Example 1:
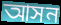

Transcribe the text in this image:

আসন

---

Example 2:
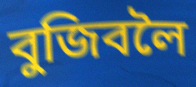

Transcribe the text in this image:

বুজিবলৈ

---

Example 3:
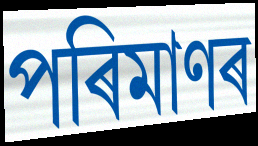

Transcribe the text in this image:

পৰিমাণৰ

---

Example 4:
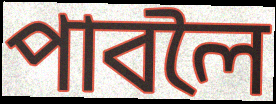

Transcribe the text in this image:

পাবলৈ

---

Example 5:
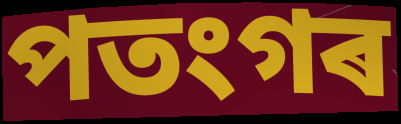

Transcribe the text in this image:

পতংগৰ